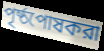
পৃষ্ঠপোষকরা